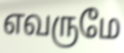
எவருமே